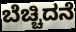
ಬೆಚ್ಚಿದನೆ